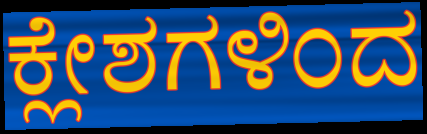
ಕ್ಲೇಶಗಳಿಂದ